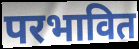
परभावित